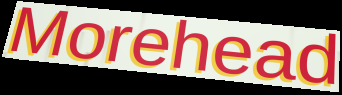
Morehead